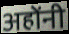
अहोंनी